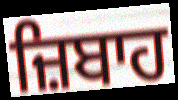
ਜ਼ਿਬਾਹ